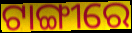
ଟାଙ୍ଗୀରେ